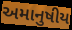
અમાનુષીય